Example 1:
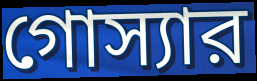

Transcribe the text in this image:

গোস্যার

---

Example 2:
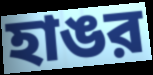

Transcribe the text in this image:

হাঙর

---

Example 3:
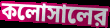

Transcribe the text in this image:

কলোসালের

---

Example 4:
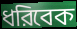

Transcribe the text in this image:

ধরিবেক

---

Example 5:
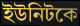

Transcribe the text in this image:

ইউনিটকে